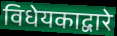
विधेयकाद्वारे